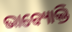
ଭାବ୍ୟୋକ୍ତି